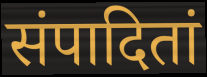
संपादितां